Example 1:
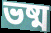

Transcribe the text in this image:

ভষ্ম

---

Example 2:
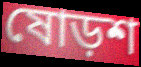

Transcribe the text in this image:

ষোড়শ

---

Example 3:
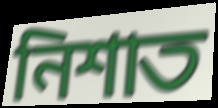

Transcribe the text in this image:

নিশাত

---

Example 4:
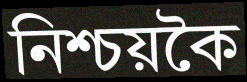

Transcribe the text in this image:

নিশ্চয়কৈ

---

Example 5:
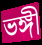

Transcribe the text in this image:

ভঙ্গী